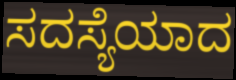
ಸದಸ್ಯೆಯಾದ